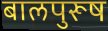
बालपुरूष